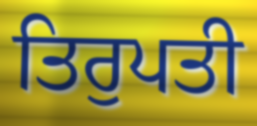
ਤਿਰੁਪਤੀ